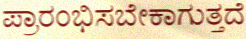
ಪ್ರಾರಂಭಿಸಬೇಕಾಗುತ್ತದೆ